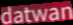
datwan